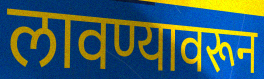
लावण्यावरून